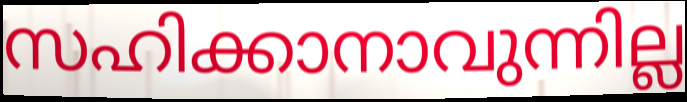
സഹിക്കാനാവുന്നില്ല